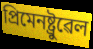
প্ৰিমেনষ্ট্ৰুৱেল